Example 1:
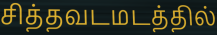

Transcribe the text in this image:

சித்தவடமடத்தில்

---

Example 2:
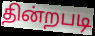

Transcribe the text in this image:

தின்றபடி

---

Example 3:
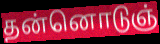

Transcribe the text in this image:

தன்னொடுஞ்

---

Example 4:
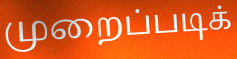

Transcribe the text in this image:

முறைப்படிக்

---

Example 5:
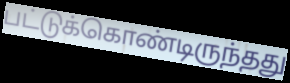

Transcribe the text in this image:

பட்டுக்கொண்டிருந்தது